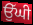
ਉੱਘੀ